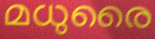
മധുരൈ